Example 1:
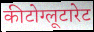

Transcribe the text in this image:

कीटोग्लूटारेट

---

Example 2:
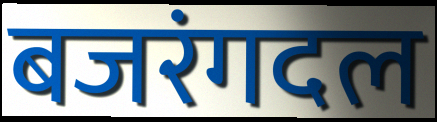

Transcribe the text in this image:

बजरंगदल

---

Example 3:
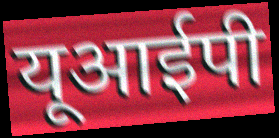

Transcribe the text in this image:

यूआईपी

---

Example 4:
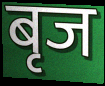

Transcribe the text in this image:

बृज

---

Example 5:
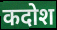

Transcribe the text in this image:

कदोश